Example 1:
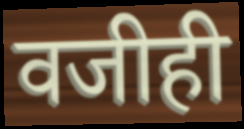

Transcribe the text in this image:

वजीही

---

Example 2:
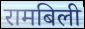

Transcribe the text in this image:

रामबिली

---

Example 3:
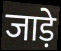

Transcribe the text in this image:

जाड़े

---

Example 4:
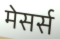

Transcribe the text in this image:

मेसर्स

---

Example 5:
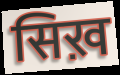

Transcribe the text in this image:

सिख़